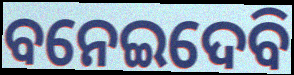
ବନେଇଦେବି